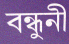
বন্ধুনী